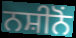
ਨਸ਼ੀਨੋਂ